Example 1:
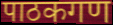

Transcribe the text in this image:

पाठकगण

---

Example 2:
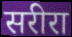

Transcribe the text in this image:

सरीरा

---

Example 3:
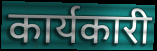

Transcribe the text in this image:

कार्यकारी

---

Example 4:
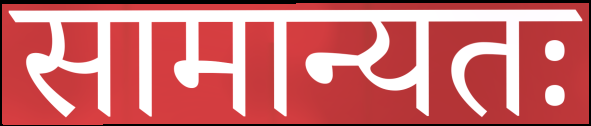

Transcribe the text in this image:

सामान्यतः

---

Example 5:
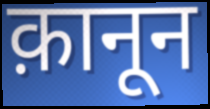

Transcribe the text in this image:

क़ानून